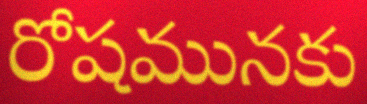
రోషమునకు